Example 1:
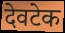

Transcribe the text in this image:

देवटेक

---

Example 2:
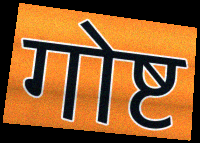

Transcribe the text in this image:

गोष्ट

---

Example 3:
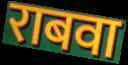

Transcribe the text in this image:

राबवा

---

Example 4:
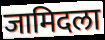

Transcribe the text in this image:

जामिदला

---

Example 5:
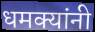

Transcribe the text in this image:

धमक्यांनी